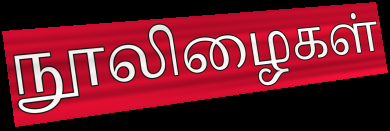
நூலிழைகள்